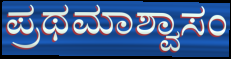
ಪ್ರಥಮಾಶ್ವಾಸಂ